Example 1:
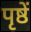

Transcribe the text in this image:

पृष्ठें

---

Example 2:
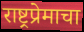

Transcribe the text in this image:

राष्ट्रप्रेमाचा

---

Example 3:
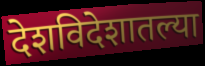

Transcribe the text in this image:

देशविदेशातल्या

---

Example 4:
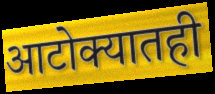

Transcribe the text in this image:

आटोक्यातही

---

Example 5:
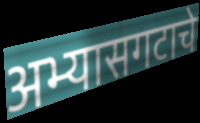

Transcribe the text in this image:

अभ्यासगटाचे